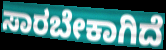
ಸಾರಬೇಕಾಗಿದೆ